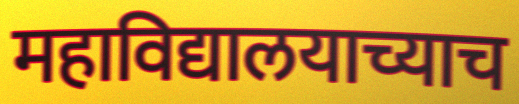
महाविद्यालयाच्याच